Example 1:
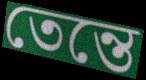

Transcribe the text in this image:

তেন্তে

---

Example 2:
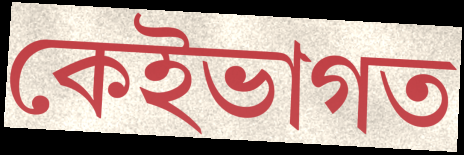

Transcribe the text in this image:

কেইভাগত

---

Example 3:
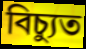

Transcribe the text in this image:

বিচ্যুত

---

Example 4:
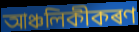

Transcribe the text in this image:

আঞ্চলিকীকৰণ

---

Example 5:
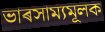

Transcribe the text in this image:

ভাৰসাম্যমূলক